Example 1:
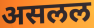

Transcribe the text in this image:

असलल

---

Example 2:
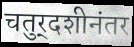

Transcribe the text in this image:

चतुर्दशीनंतर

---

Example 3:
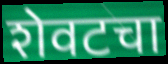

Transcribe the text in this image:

शेवटचा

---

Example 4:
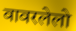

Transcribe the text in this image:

वावरलेलो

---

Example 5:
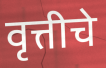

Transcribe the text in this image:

वृत्तीचे